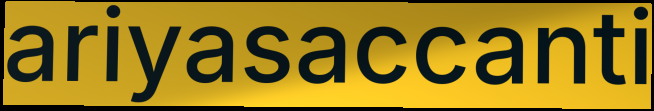
ariyasaccanti